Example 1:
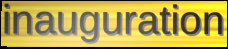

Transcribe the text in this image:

inauguration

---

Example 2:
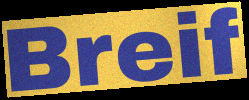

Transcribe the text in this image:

Breif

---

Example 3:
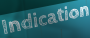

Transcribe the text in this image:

Indication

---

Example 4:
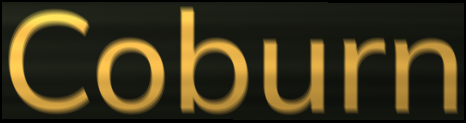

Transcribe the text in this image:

Coburn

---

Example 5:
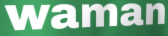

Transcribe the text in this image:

waman